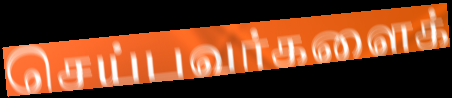
செய்பவர்களைக்